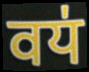
वय॑